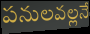
పనులవల్లనే